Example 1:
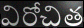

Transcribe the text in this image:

విరోచిత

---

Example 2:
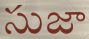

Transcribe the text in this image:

సుజా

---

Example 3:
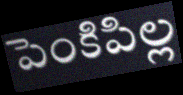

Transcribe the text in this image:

పెంకిపిల్ల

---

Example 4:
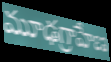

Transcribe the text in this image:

మూఢగ్రాహేణ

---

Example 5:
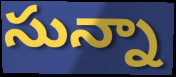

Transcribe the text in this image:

సున్నా